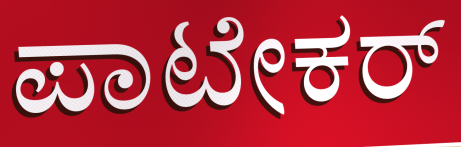
ಪಾಟೇಕರ್